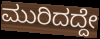
ಮುರಿದದ್ದೇ